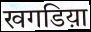
खगडिय़ा